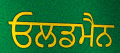
ਓਲਡਮੈਨ